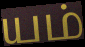
யம்